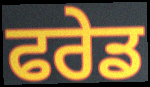
ਫਰੇਡ